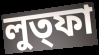
লুত্ফা